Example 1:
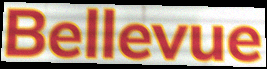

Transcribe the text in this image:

Bellevue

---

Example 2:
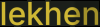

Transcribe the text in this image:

lekhen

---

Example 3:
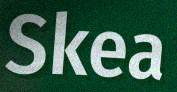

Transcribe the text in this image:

Skea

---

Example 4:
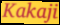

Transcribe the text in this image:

Kakaji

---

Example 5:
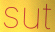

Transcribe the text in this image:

sut